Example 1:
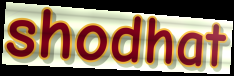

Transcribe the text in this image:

shodhat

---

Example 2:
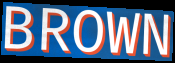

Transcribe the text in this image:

BROWN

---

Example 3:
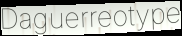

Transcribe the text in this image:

Daguerreotype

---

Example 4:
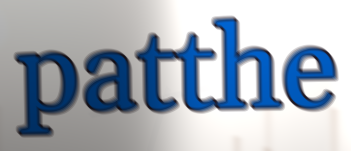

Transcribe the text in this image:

patthe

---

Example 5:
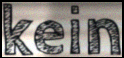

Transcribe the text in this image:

kein